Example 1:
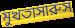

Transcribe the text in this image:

মুখতাসারুস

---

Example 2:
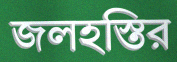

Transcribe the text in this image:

জলহস্তির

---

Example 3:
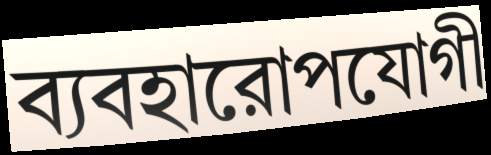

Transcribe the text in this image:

ব্যবহারোপযোগী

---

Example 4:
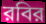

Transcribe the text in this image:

রবির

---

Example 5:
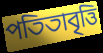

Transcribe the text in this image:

পতিতাবৃত্তি